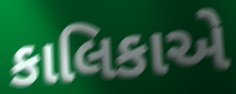
કાલિકાએ